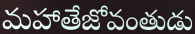
మహాతేజోవంతుడు